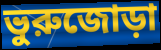
ভুরুজোড়া